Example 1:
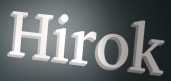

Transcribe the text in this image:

Hirok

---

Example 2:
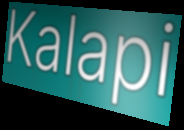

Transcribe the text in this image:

Kalapi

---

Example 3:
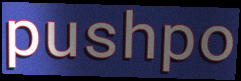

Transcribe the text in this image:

pushpo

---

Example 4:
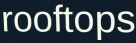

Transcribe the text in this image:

rooftops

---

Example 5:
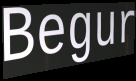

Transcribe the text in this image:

Begur